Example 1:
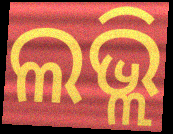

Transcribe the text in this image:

ଲଭ୍ଲି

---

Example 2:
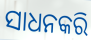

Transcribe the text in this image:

ସାଧନକରି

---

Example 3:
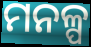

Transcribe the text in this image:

ମନଳ୍ପ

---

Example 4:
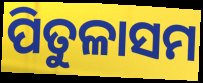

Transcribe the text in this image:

ପିତୁଳାସମ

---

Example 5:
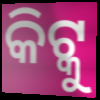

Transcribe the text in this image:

କିଟ୍କୁ